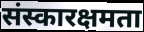
संस्कारक्षमता